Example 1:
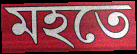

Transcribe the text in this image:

মহতে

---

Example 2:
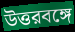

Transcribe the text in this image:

উত্তরবঙ্গে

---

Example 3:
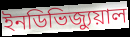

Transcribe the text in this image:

ইনডিভিজ্যুয়াল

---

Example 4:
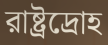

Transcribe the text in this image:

রাষ্ট্রদ্রোহ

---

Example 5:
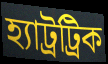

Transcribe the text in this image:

হ্যাট্রট্রিক